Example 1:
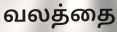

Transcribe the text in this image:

வலத்தை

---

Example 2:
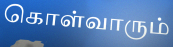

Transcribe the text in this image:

கொள்வாரும்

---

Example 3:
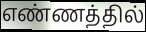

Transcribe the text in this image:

எண்ணத்தில்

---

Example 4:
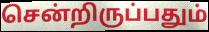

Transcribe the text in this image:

சென்றிருப்பதும்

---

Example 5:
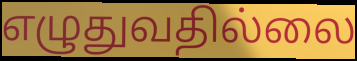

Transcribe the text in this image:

எழுதுவதில்லை